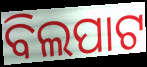
ବିଲପାଟ